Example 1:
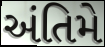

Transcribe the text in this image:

અંતિમે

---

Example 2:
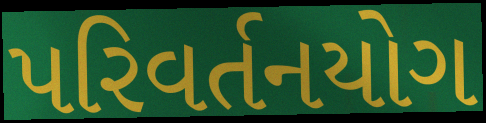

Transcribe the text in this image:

પરિવર્તનયોગ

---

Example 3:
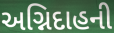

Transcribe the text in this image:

અગ્નિદાહની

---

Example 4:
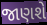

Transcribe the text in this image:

જાણશે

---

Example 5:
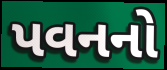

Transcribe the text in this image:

પવનનો